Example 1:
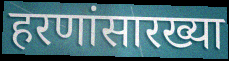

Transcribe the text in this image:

हरणांसारख्या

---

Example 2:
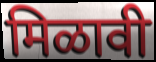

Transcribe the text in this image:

मिळावी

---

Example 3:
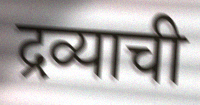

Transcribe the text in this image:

द्रव्याची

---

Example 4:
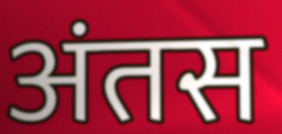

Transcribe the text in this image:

अंतस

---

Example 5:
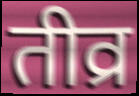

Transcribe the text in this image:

तीव्र